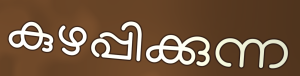
കുഴപ്പിക്കുന്ന